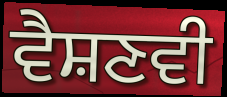
ਵੈਸ਼ਣਵੀ